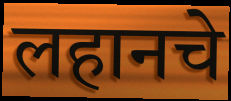
लहानचे